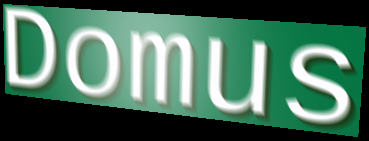
Domus